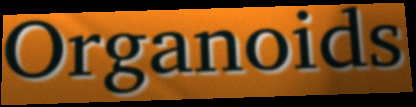
Organoids